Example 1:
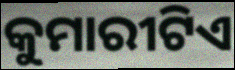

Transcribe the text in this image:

କୁମାରୀଟିଏ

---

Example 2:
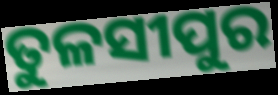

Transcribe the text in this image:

ତୁଳସୀପୁର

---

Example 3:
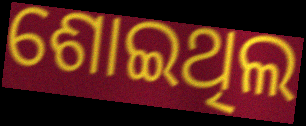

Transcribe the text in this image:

ଶୋଇଥିଲ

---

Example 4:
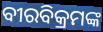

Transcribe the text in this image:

ବୀରବିକ୍ରମଙ୍କ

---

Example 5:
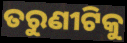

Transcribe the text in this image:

ତରୁଣୀଟିକୁ